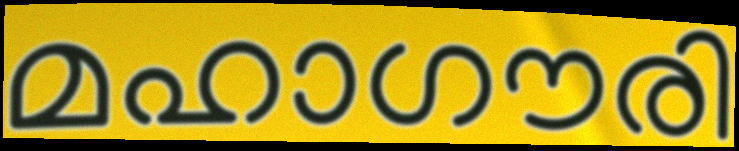
മഹാഗൗരി